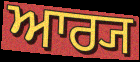
ਆਰ੍ਯ